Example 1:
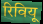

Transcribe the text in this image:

रिवियू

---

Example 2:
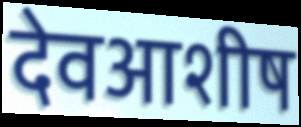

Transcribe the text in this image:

देवआशीष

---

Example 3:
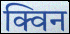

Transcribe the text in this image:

क्विन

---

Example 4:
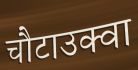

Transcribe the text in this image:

चौटाउक्वा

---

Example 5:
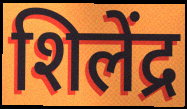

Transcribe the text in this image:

शिलेंद्र